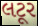
લટૂર